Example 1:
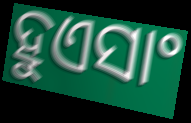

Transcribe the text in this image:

ହୁଏସାଂ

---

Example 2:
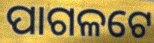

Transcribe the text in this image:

ପାଗଳଟେ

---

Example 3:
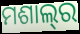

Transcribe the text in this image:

ମଶାଲ୍‌ର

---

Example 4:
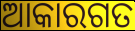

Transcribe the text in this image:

ଆକାରଗତ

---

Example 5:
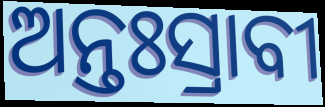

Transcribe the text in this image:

ଅନ୍ତଃସ୍ରାବୀ